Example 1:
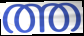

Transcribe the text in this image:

ത്ത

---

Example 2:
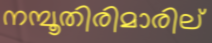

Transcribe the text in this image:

നമ്പൂതിരിമാരില്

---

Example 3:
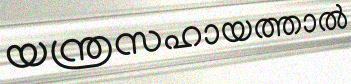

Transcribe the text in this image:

യന്ത്രസഹായത്താൽ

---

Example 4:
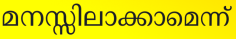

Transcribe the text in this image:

മനസ്സിലാക്കാമെന്ന്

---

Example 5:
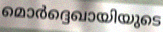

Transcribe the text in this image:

മൊർദ്ദെഖായിയുടെ